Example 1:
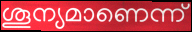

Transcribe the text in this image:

ശൂന്യമാണെന്ന്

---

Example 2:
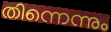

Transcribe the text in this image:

തിന്നെന്നും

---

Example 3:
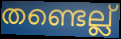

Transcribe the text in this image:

തണ്ടെല്ല്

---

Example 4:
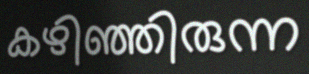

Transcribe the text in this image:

കഴിഞ്ഞിരുന്ന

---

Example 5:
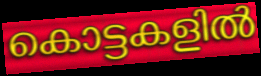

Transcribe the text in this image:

കൊട്ടകളിൽ